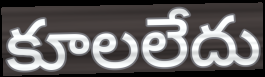
కూలలేదు